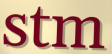
stm